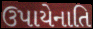
ઉપાયેનાતિ